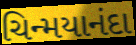
ચિન્મયાનંદા